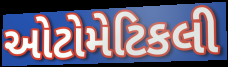
ઓટોમેટિકલી